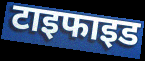
टाइफाइड